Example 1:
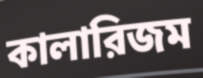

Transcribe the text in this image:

কালারিজম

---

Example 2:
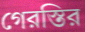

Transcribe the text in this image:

গেরস্তির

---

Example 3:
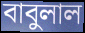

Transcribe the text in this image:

বাবুলাল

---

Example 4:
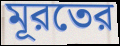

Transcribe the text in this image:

মূরতের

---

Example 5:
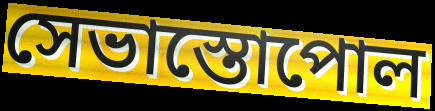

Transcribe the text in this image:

সেভাস্তোপোল